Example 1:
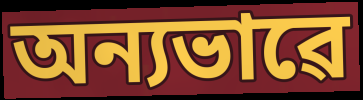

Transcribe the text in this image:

অন্যভাৱে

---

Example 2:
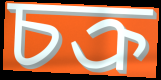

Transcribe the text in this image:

চক্ৰ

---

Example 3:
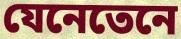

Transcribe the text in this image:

যেনেতেনে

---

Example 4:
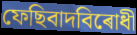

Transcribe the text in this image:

ফেছিবাদবিৰোধী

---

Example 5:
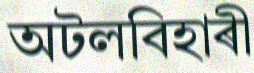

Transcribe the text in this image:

অটলবিহাৰী